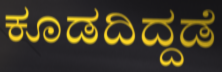
ಕೂಡದಿದ್ದಡೆ